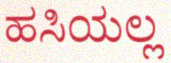
ಹಸಿಯಲ್ಲ